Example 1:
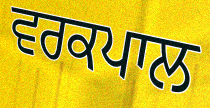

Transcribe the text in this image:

ਵਰਕਪਾਲ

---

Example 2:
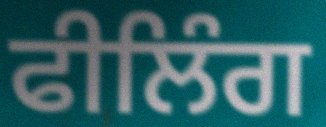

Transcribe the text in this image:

ਫੀਲਿੰਗ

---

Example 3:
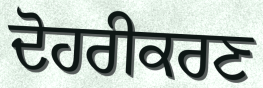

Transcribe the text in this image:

ਦੋਹਰੀਕਰਣ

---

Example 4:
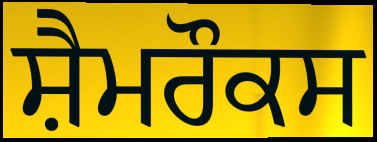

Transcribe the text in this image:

ਸ਼ੈਮਰੌਕਸ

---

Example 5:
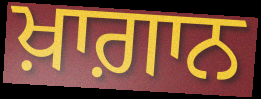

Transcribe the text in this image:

ਖ਼ਾਗ਼ਾਨ